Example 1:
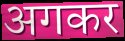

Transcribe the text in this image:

अगकर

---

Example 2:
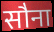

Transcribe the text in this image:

सौना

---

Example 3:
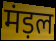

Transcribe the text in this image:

मंड़ल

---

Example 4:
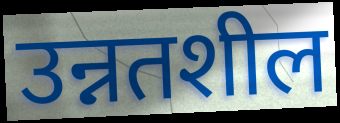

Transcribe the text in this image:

उन्नतशील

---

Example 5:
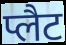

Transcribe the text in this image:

प्लैट